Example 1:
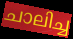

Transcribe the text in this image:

ചാലിച്ച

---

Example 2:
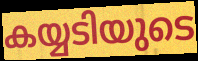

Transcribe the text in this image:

കയ്യടിയുടെ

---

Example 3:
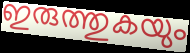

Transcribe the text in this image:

ഇരുത്തുകയും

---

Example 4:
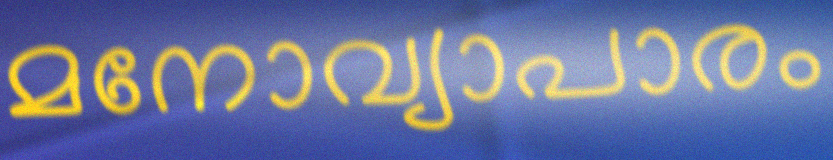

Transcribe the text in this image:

മനോവ്യാപാരം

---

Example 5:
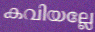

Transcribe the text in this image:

കവിയല്ലേ